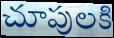
చూపులకి